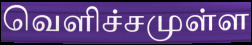
வெளிச்சமுள்ள